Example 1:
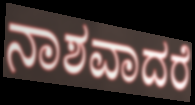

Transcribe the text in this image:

ನಾಶವಾದರೆ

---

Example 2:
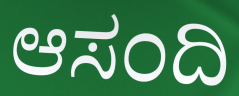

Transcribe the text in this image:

ಆಸಂದಿ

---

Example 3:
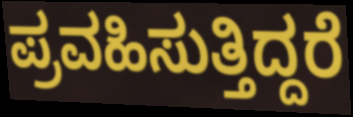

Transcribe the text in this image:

ಪ್ರವಹಿಸುತ್ತಿದ್ದರೆ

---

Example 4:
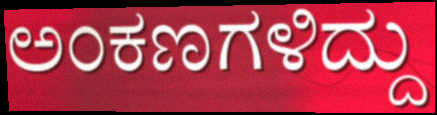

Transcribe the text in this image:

ಅಂಕಣಗಳಿದ್ದು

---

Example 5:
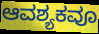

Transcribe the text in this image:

ಆವಶ್ಯಕವೂ